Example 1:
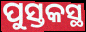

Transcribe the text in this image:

ପୁସ୍ତକସ୍ଥ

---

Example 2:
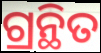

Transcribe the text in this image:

ଗ୍ରନ୍ଥିତ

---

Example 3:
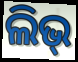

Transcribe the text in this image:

ଲିଭ୍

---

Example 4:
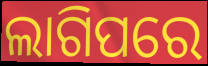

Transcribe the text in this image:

ଲାଗିପରେ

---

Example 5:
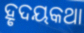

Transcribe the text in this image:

ହୃଦୟକଥା